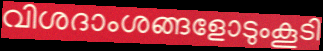
വിശദാംശങ്ങളോടുംകൂടി